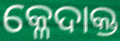
କ୍ଳେଦାକ୍ତ